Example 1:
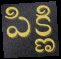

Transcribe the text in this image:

పిక్ణి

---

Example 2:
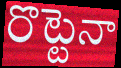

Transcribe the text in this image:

రొట్టెనా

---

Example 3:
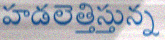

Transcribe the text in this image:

హడలెత్తిస్తున్న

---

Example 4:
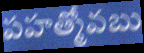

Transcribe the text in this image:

పహత్మోవబు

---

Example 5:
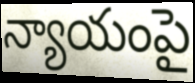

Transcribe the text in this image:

న్యాయంపై